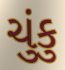
ચુંકુ